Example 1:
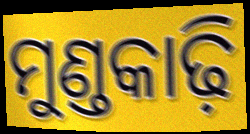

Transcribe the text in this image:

ମୁଣ୍ଡକାଢ଼ି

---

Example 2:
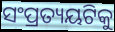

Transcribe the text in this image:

ସଂପ୍ରତ୍ୟୟଟିକୁ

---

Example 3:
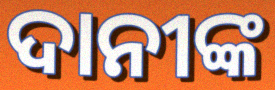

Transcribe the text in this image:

ଦାନୀଙ୍କ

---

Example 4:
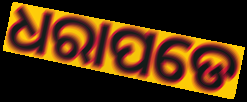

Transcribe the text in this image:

ଧରାପଡେ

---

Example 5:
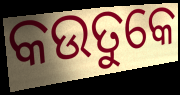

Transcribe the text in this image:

କଉତୁକେ